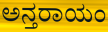
ಅನ್ತರಾಯಂ